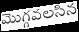
మొగ్గవలసిన